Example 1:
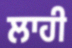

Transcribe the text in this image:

ਲਾਹੀ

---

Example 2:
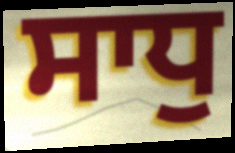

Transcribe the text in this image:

ਸਾਧੁ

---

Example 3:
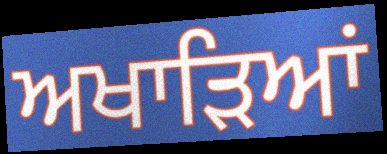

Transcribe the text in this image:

ਅਖਾੜਿਆਂ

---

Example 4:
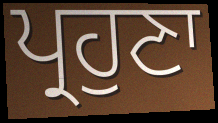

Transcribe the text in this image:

ਪ੍ਰਹੁਣਾ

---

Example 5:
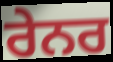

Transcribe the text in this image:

ਰੇਨਰ